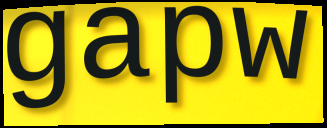
gapw